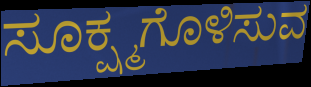
ಸೂಕ್ಷ್ಮಗೊಳಿಸುವ